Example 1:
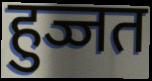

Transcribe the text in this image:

हुज्जत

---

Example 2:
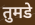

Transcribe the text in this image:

तुमडे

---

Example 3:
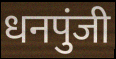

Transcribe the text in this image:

धनपुंजी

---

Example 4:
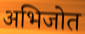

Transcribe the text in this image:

अभिजोत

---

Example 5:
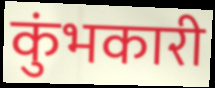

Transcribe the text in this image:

कुंभकारी